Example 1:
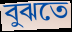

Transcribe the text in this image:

বুঝতে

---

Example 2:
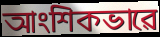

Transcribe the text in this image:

আংশিকভাৱে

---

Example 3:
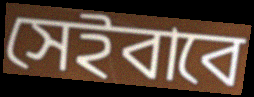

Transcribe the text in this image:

সেইবাবে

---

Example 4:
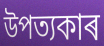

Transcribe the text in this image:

উপত্যকাৰ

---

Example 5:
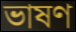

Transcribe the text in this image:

ভাষণ